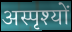
अस्पृश्यों